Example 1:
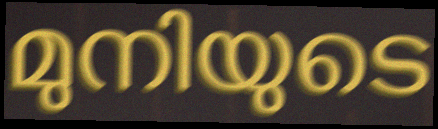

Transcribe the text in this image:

മുനിയുടെ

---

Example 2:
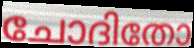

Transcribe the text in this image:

ചോദിതോ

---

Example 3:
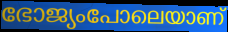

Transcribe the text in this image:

ഭോജ്യംപോലെയാണ്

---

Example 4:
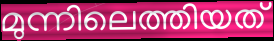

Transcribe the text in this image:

മുന്നിലെത്തിയത്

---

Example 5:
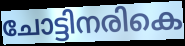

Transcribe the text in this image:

ചോട്ടിനരികെ